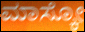
ಮಾಸ್ಕೋ